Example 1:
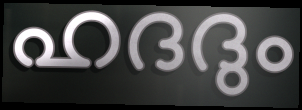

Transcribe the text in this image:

ഹദദും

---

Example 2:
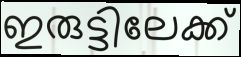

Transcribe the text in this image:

ഇരുട്ടിലേക്ക്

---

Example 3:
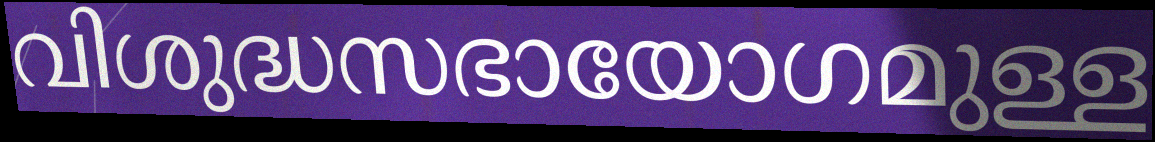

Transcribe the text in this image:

വിശുദ്ധസഭായോഗമുള്ള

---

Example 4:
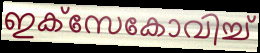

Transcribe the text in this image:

ഇക്‌സേകോവിച്ച്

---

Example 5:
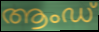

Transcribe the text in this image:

ആംഡ്